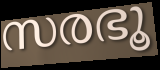
സരഭൂ